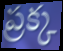
ప్రక్క